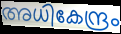
അധികേന്ദ്രം